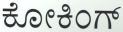
ಕೋಕಿಂಗ್